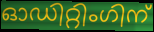
ഓഡിറ്റിംഗിന്